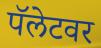
पॅलेटवर